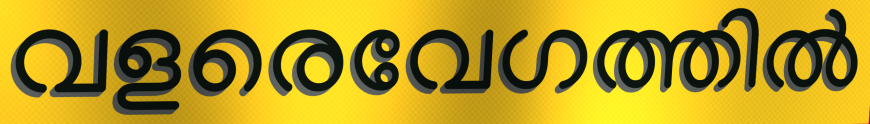
വളരെവേഗത്തിൽ